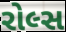
રોલ્સ